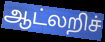
ஆட்லறிச்